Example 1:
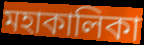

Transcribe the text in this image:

মহাকালিকা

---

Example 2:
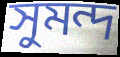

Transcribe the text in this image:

সুমন্দ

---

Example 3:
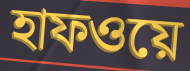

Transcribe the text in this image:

হাফওয়ে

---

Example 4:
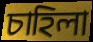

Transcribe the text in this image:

চাহিলা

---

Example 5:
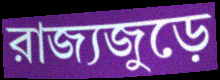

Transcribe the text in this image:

রাজ্যজুড়ে